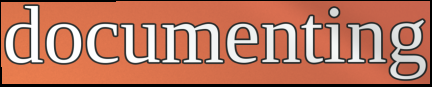
documenting